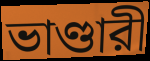
ভাণ্ডারী